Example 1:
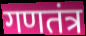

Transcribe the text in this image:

गणतंत्र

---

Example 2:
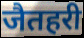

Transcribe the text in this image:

जैतहरी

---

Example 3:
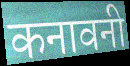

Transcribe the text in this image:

कनावनी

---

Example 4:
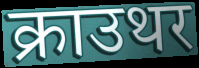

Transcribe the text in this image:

क्राउथर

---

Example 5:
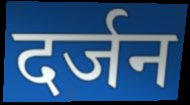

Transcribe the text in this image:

दर्जन